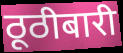
ठूठीबारी